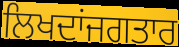
ਲਿਖਦਾਂਜਗਤਾਰ